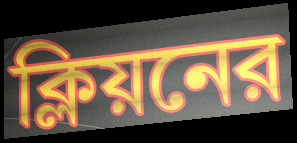
ক্লিয়নের